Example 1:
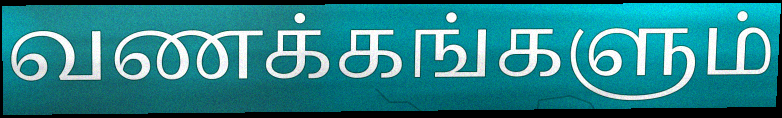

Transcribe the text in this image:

வணக்கங்களும்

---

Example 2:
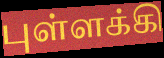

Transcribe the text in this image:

புள்ளக்கி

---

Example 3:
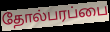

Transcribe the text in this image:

தோல்பரப்பை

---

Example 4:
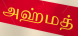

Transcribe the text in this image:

அஹ்மத்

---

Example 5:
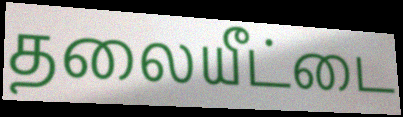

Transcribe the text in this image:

தலையீட்டை